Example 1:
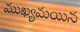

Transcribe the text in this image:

ముఖ్యమయిన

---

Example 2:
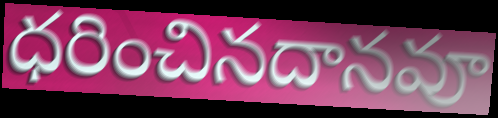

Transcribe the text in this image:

ధరించినదానవూ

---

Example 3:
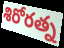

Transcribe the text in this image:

శిరోరత్న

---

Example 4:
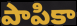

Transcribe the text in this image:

పాపికా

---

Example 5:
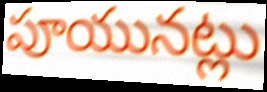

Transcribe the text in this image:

పూయునట్లు